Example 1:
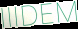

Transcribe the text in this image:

IIIDEM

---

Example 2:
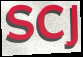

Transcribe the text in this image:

SCJ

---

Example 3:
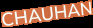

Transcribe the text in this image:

CHAUHAN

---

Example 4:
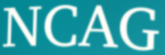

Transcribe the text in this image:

NCAG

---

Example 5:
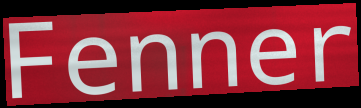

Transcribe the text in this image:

Fenner